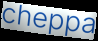
cheppa